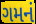
ગમનં